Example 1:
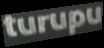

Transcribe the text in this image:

turupu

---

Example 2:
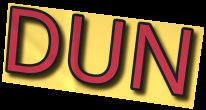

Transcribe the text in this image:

DUN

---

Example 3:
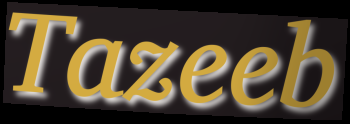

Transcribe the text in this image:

Tazeeb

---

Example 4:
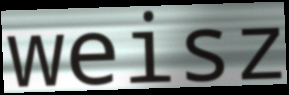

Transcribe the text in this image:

weisz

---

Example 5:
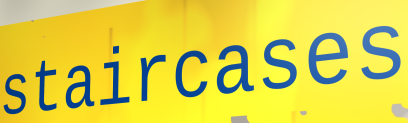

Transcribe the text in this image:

staircases